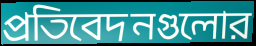
প্রতিবেদনগুলোর